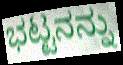
ಭಟ್ಟನನ್ನು